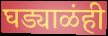
घड्याळंही